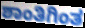
ಶಾಂತಿಗಿಂತ